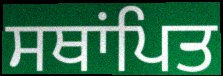
ਸਥਾਂਪਿਤ